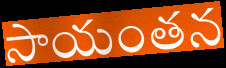
సాయంతన